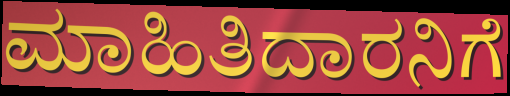
ಮಾಹಿತಿದಾರನಿಗೆ